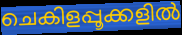
ചെകിളപ്പൂക്കളിൽ